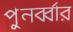
পুনর্ব্বার